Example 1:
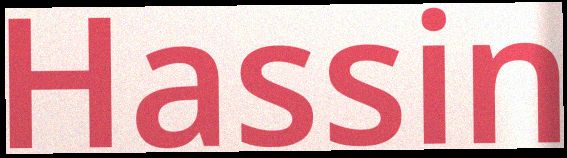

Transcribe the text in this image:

Hassin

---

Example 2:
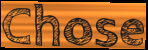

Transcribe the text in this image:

Chose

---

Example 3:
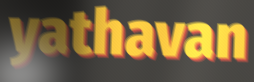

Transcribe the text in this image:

yathavan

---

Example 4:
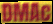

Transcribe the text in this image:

DMAc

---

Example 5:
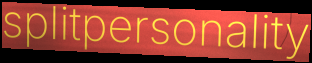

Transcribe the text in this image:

splitpersonality